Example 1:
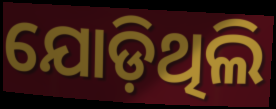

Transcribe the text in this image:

ଯୋଡ଼ିଥିଲି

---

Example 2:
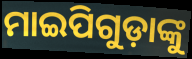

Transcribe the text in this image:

ମାଇପିଗୁଡ଼ାଙ୍କୁ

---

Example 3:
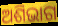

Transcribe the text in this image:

ଅଶିଭାଗ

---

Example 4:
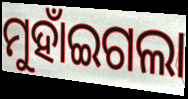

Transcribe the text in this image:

ମୁହାଁଇଗଲା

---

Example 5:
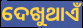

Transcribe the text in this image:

ଦେଖୁଥାଏଁ